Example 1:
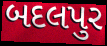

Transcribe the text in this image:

બદલપુર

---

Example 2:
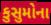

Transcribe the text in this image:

કુસુમોના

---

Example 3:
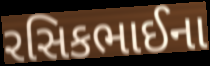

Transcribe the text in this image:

રસિકભાઈના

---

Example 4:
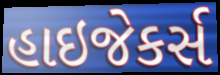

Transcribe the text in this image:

હાઇજેકર્સ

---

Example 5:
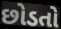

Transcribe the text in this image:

છોડતો